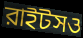
রাইটসও